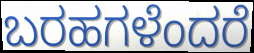
ಬರಹಗಳೆಂದರೆ